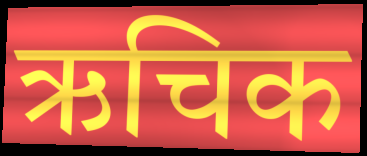
ऋचिक